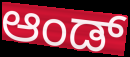
ಆಂಡ್